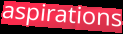
aspirations